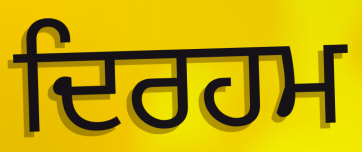
ਦਿਰਹਮ